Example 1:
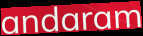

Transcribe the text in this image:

andaram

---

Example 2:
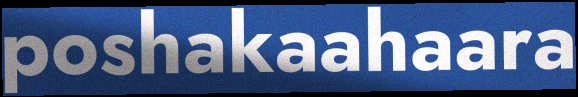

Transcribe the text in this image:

poshakaahaara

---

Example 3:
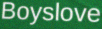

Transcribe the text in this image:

Boyslove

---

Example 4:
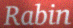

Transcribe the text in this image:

Rabin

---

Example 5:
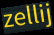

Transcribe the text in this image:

zellij